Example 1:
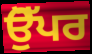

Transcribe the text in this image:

ਉੋੱਪਰ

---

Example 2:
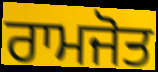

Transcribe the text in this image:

ਰਾਮਜੋਤ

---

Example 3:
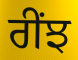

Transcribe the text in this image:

ਰੀਂਝ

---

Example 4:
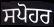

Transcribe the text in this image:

ਸਪੋਹਰ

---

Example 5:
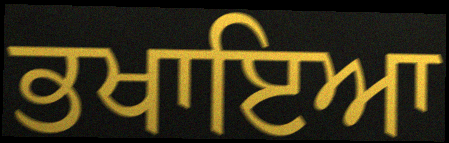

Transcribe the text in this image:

ਭਖਾਇਆ